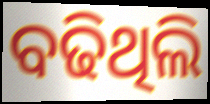
ବଢିଥିଲି